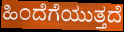
ಹಿಂದೆಗೆಯುತ್ತದೆ